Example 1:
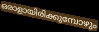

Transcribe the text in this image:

ഒരാളായിരിക്കുമ്പോഴും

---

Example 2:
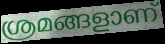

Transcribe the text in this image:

ശ്രമങ്ങളാണ്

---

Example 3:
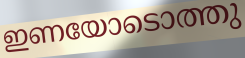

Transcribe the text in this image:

ഇണയോടൊത്തു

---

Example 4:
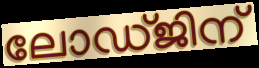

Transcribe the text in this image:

ലോഡ്ജിന്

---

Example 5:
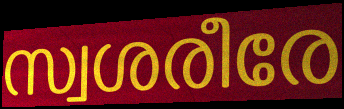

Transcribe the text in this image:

സ്വശരീരേ